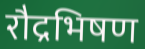
रौद्रभिषण